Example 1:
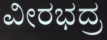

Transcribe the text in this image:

ವೀರಭದ್ರ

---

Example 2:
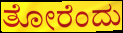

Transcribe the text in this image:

ತೋರೆಂದು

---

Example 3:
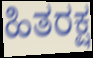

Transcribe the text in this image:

ಹಿತರಕ್ಷ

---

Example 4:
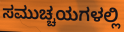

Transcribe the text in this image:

ಸಮುಚ್ಚಯಗಳಲ್ಲಿ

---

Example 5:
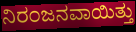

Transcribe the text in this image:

ನಿರಂಜನವಾಯಿತ್ತು